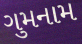
ગુમનામ